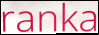
ranka